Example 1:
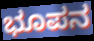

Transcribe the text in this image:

ಭೂಪನ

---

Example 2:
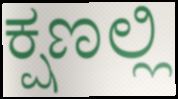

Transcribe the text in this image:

ಕ್ಷಣಲ್ಲಿ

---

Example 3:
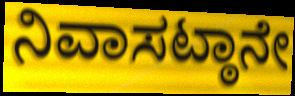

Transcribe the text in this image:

ನಿವಾಸಟ್ಠಾನೇ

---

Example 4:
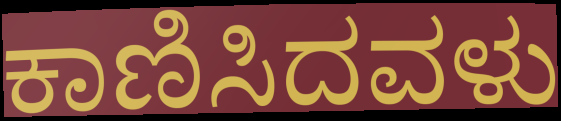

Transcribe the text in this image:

ಕಾಣಿಸಿದವಳು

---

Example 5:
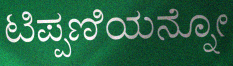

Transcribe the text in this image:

ಟಿಪ್ಪಣಿಯನ್ನೋ